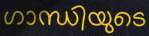
ഗാന്ധിയുടെ